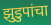
झुडुपांचा